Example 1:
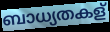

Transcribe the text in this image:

ബാധ്യതകള്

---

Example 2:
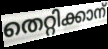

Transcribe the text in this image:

തെറ്റിക്കാന്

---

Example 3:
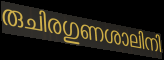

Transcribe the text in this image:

രുചിരഗുണശാലിനി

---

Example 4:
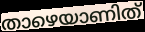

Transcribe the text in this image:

താഴെയാണിത്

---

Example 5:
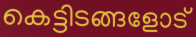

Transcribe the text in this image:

കെട്ടിടങ്ങളോട്